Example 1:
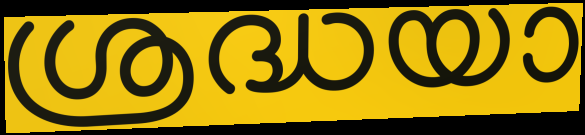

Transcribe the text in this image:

ശ്രദ്ധയാ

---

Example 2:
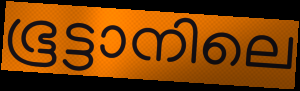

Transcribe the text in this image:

ഭൂട്ടാനിലെ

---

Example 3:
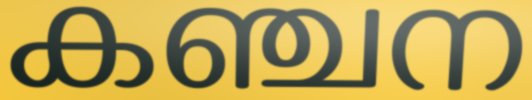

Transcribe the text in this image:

കഞ്ചന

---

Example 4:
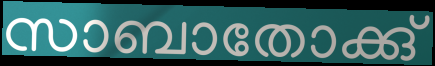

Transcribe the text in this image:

സാബാതോക്കു്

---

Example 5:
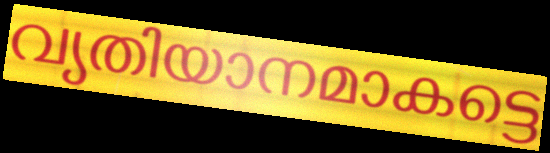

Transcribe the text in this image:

വ്യതിയാനമാകട്ടെ